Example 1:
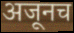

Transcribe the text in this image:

अजूनच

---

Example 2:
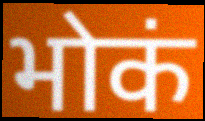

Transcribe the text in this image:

भोकं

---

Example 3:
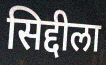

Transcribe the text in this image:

सिद्दीला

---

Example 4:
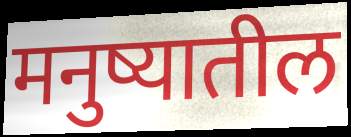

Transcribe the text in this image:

मनुष्यातील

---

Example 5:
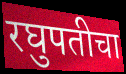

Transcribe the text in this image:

रघुपतीचा